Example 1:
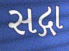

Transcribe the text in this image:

સદ્ગા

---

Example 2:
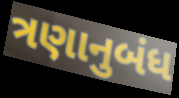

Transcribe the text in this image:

ત્રણાનુબંધ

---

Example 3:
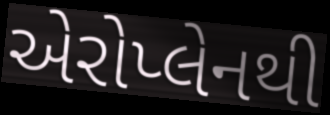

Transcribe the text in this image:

એરોપ્લેનથી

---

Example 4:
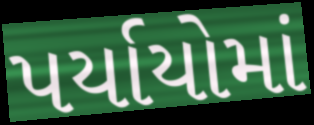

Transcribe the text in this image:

પર્યાયોમાં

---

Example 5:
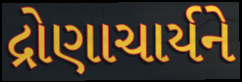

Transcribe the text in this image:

દ્રોણાચાર્યને